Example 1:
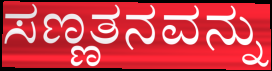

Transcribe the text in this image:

ಸಣ್ಣತನವನ್ನು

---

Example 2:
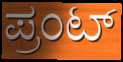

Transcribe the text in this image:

ಪ್ರಂಟ್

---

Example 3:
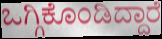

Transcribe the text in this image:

ಒಗ್ಗಿಕೊಂಡಿದ್ದಾರೆ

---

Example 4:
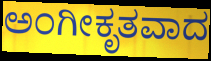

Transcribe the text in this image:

ಅಂಗೀಕೃತವಾದ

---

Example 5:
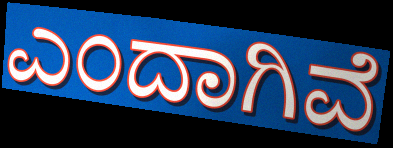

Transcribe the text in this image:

ಎಂದಾಗಿವೆ